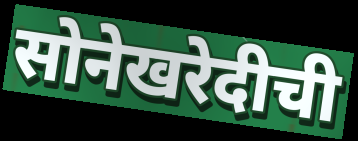
सोनेखरेदीची